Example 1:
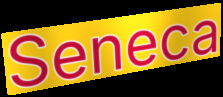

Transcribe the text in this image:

Seneca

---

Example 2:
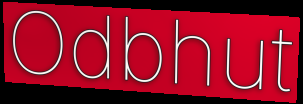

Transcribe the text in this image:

Odbhut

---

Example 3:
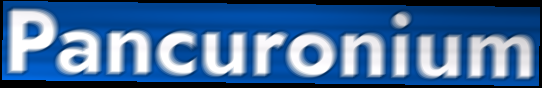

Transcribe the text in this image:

Pancuronium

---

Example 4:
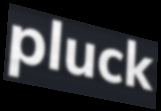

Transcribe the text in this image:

pluck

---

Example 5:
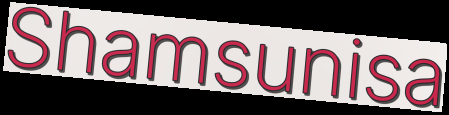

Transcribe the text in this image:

Shamsunisa